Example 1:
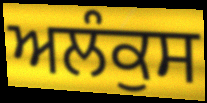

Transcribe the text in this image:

ਅਲੰਕੁਸ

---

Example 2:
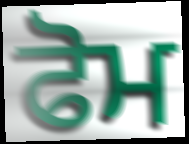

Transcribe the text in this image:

ਫੋਮ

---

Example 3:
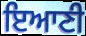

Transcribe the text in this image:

ਇਆਣੀ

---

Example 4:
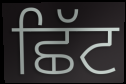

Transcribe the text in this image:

ਛਿੱਟ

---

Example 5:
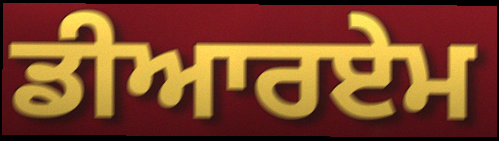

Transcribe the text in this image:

ਡੀਆਰਏਮ